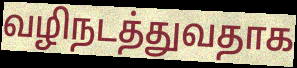
வழிநடத்துவதாக